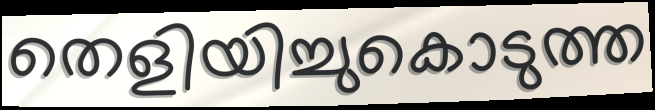
തെളിയിച്ചുകൊടുത്ത